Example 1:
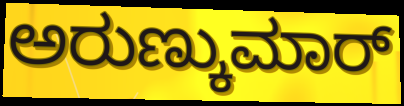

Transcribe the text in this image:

ಅರುಣ್ಕುಮಾರ್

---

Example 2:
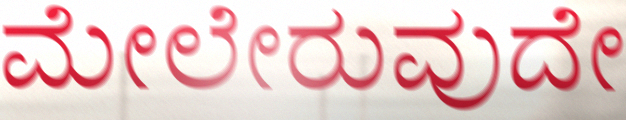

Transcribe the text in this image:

ಮೇಲೇರುವುದೇ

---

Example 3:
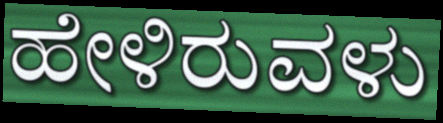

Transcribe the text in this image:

ಹೇಳಿರುವಳು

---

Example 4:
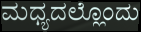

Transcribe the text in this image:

ಮಧ್ಯದಲ್ಲೊಂದು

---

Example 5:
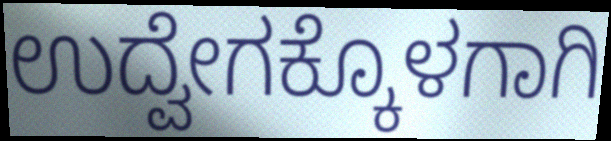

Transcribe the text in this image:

ಉದ್ವೇಗಕ್ಕೊಳಗಾಗಿ